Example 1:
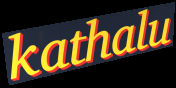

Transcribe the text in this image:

kathalu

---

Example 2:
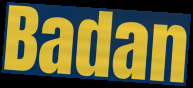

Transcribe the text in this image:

Badan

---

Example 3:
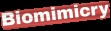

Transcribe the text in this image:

Biomimicry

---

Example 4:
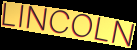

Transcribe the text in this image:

LINCOLN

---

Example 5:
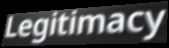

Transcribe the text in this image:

Legitimacy